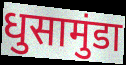
धुसामुंडा